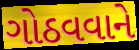
ગોઠવવાને